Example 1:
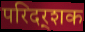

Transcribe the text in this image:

परिदर्शक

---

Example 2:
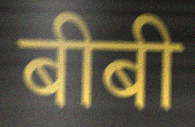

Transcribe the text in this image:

बीबी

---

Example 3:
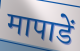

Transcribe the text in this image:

मापाडें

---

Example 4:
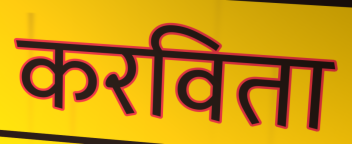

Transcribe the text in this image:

करविता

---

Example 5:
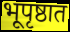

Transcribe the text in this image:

भूपृष्ठात